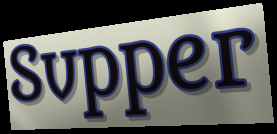
Supper